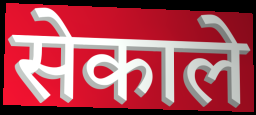
सेकाले